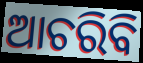
ଆଚରିବି